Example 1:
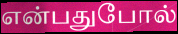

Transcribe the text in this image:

என்பதுபோல்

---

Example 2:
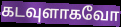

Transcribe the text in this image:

கடவுளாகவோ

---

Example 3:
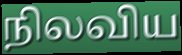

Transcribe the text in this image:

நிலவிய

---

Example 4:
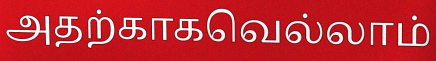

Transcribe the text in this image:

அதற்காகவெல்லாம்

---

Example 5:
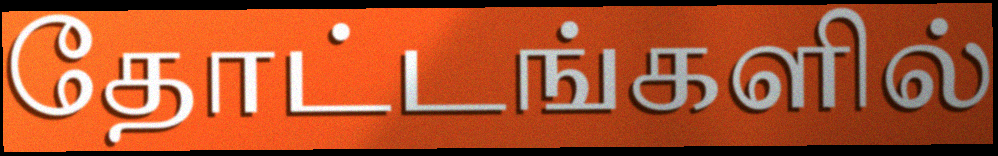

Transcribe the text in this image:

தோட்டங்களில்